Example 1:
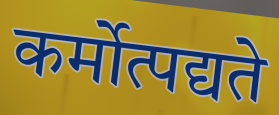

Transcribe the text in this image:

कर्मोत्पद्यते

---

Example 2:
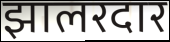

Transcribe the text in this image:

झालरदार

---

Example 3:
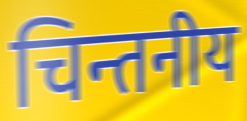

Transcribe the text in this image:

चिन्तनीय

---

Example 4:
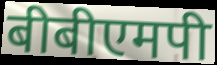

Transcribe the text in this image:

बीबीएमपी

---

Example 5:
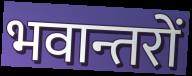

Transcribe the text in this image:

भवान्तरों